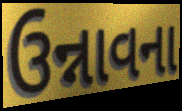
ઉન્નાવના